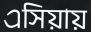
এসিয়ায়